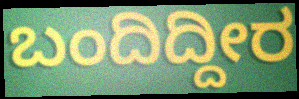
ಬಂದಿದ್ದೀರ